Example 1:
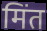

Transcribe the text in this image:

मिंत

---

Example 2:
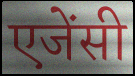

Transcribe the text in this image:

एजेंसी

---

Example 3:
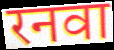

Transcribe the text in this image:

रनवा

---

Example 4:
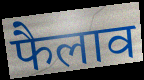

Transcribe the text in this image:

फैलाव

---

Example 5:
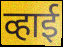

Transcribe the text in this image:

व्हाई